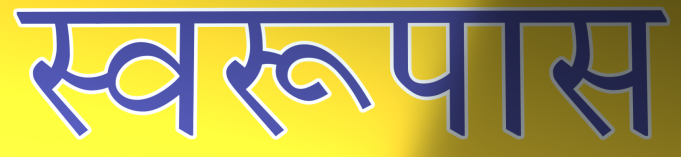
स्वरूपास